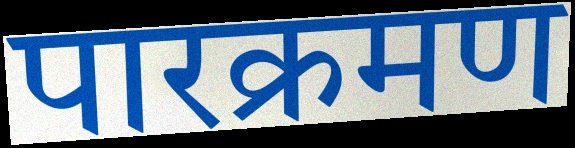
पारक्रमण